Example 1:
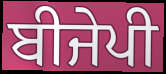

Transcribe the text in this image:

ਬੀਜੇਪੀ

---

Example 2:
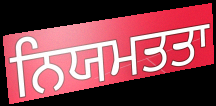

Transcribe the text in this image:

ਨਿਯਮਤਤਾ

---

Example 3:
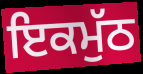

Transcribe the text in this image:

ਇਕਮੁੱਠ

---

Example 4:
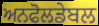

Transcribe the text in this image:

ਅਨਫੋਲਡੇਬਲ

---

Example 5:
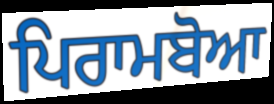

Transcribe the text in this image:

ਪਿਰਾਮਬੋਆ